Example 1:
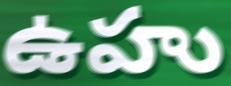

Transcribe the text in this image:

ఉహు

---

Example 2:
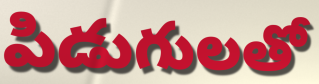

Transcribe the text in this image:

పిడుగులతో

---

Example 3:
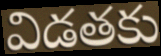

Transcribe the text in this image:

విడతకు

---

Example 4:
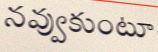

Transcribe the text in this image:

నవ్వుకుంటూ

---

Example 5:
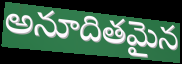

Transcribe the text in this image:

అనూదితమైన